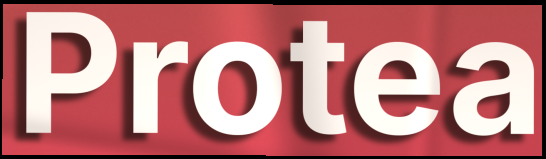
Protea